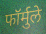
फॉर्मुले